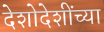
देशोदेशींच्या